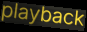
playback